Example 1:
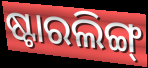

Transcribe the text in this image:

ଷ୍ଟାରଲିଙ୍ଗ୍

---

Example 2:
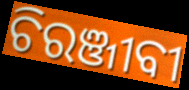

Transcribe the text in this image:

ଚିରଞ୍ଜୀବୀ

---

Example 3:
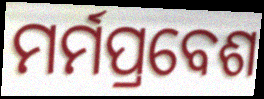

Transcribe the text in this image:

ମର୍ମପ୍ରବେଶ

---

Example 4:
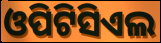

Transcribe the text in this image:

ଓପିଟିସିଏଲ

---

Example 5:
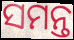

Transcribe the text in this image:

ସମନ୍ତ